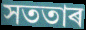
সততাৰ